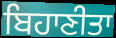
ਬਿਹਾਣੀਤਾ